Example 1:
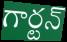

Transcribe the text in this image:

గార్టన్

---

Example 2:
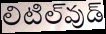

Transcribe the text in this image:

లిటిల్‌వుడ్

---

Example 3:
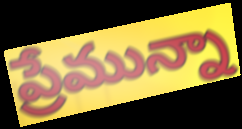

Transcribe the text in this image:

ప్రేమున్నా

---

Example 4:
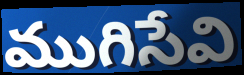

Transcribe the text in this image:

ముగిసేవి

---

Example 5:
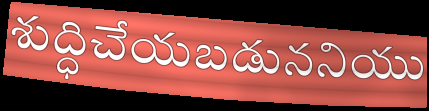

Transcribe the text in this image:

శుద్ధిచేయబడుననియు